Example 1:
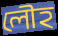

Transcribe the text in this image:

লৌহ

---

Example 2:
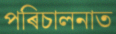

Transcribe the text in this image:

পৰিচালনাত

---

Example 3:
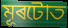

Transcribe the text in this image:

মূৰটোত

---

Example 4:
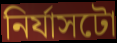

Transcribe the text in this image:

নিৰ্যাসটো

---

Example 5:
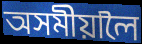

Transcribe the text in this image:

অসমীয়ালৈ